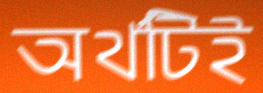
অর্থটিই